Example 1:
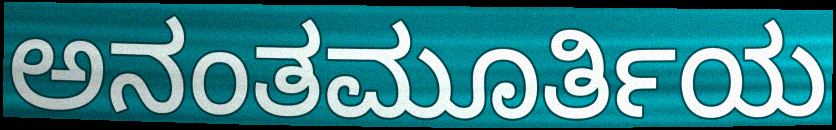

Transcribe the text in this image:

ಅನಂತಮೂರ್ತಿಯ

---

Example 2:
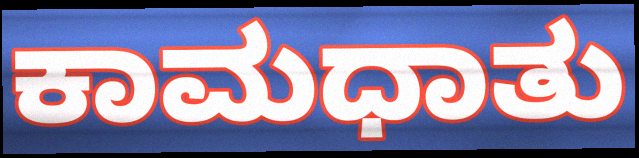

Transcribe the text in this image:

ಕಾಮಧಾತು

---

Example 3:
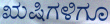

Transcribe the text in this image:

ಋಷಿಗಳಿಗೂ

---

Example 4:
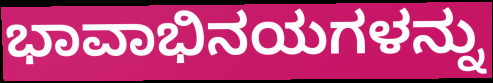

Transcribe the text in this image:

ಭಾವಾಭಿನಯಗಳನ್ನು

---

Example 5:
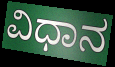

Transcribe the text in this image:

ವಿಧಾನ